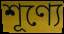
শূণ্যে